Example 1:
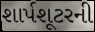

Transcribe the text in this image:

શાર્પશૂટરની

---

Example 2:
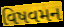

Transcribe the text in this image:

વિષવમન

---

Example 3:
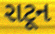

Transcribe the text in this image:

રાટૂન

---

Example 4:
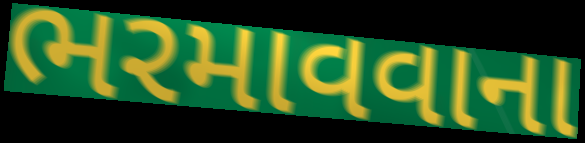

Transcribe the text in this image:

ભરમાવવાના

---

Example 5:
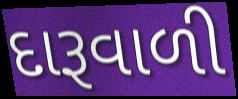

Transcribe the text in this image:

દારૂવાળી